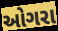
ઓગરા